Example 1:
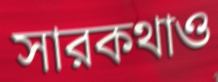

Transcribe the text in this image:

সারকথাও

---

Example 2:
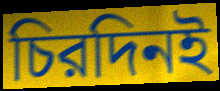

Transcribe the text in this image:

চিরদিনই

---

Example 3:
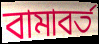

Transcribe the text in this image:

বামাবর্ত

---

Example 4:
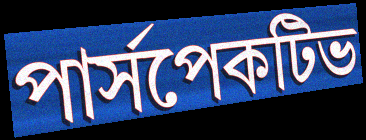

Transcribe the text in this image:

পার্সপেকটিভ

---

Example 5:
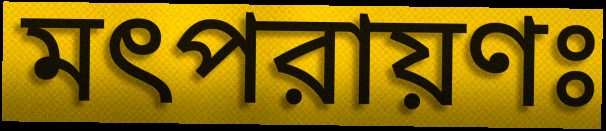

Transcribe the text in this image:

মৎপরায়ণঃ